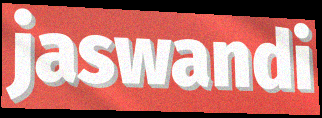
jaswandi